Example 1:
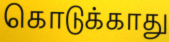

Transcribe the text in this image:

கொடுக்காது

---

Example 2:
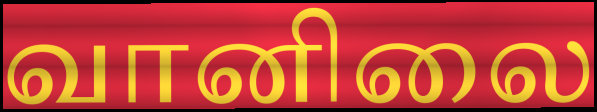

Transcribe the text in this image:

வானிலை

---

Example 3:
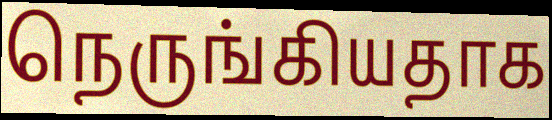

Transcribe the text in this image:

நெருங்கியதாக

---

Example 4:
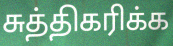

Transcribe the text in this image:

சுத்திகரிக்க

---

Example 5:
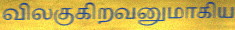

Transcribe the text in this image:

விலகுகிறவனுமாகிய